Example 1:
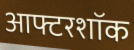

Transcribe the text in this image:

आफ्टरशॉक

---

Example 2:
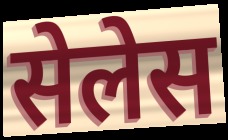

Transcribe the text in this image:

सेलेस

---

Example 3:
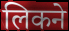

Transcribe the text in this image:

लिकने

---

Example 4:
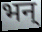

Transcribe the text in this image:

भन्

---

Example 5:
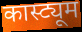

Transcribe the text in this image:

कास्ट्यूम